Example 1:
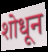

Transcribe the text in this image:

शोधून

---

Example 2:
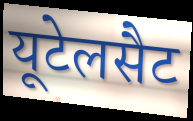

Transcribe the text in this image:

यूटेलसैट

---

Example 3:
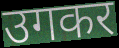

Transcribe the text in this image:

उगकर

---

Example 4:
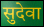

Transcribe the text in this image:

सुदेवा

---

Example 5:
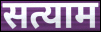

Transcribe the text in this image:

सत्याम